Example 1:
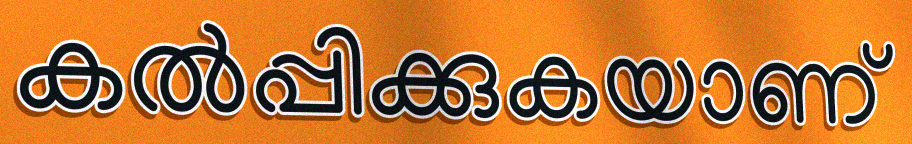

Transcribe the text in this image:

കൽപ്പിക്കുകയാണ്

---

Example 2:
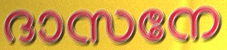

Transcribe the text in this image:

ദാസനേ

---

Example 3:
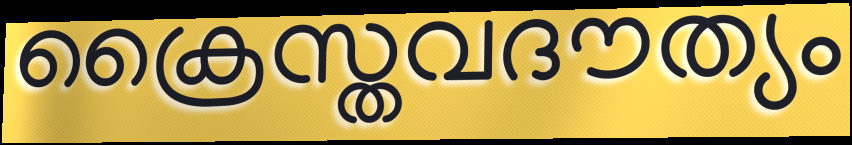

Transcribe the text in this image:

ക്രൈസ്തവദൗത്യം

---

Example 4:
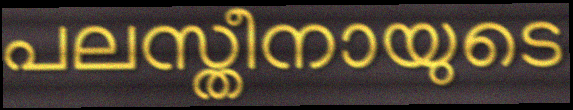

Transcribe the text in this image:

പലസ്തീനായുടെ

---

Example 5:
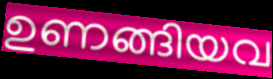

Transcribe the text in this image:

ഉണങ്ങിയവ